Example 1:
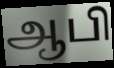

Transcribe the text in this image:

ஆபி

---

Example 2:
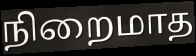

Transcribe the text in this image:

நிறைமாத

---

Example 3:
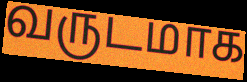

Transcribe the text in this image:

வருடமாக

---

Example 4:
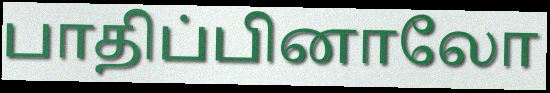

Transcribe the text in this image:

பாதிப்பினாலோ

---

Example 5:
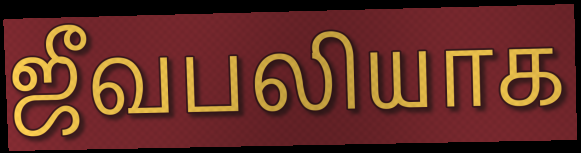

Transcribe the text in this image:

ஜீவபலியாக